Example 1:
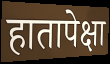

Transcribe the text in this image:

हातापेक्षा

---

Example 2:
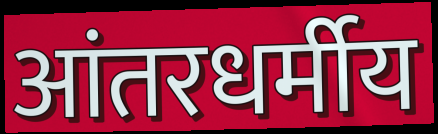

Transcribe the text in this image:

आंतरधर्मीय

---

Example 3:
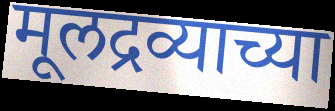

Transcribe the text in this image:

मूलद्रव्याच्या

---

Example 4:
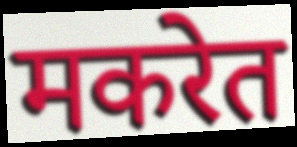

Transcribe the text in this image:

मकरेत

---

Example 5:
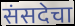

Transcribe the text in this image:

संसदेचा